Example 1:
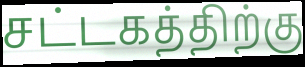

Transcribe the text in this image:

சட்டகத்திற்கு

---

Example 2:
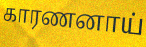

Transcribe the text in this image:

காரணனாய்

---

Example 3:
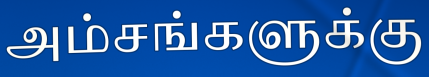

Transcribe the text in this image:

அம்சங்களுக்கு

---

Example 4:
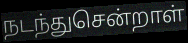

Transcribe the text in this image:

நடந்துசென்றாள்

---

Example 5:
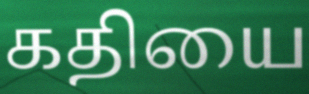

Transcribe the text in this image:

கதியை